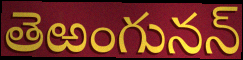
తెఱంగునన్